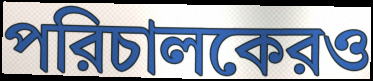
পরিচালকেরও